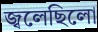
জ্বলেছিলো